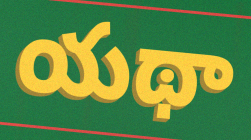
యథా